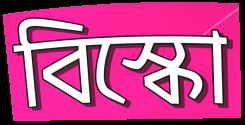
বিস্কো